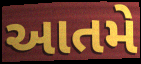
આતમે